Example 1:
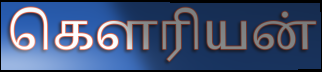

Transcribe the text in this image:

கௌரியன்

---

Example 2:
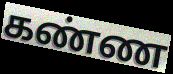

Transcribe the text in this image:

கண்ண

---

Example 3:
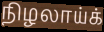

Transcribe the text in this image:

நிழலாய்க்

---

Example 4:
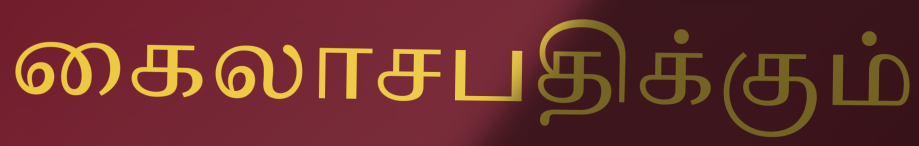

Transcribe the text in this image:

கைலாசபதிக்கும்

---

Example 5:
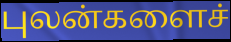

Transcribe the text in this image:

புலன்களைச்